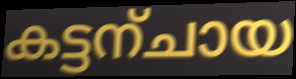
കട്ടന്ചായ